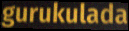
gurukulada